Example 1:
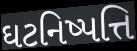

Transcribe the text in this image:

ઘટનિષ્પત્તિ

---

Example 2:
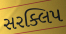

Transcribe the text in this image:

સરક્લિપ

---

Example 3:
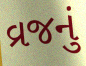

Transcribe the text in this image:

વ્રજનું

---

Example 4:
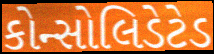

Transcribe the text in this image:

કોન્સોલિડેટેડ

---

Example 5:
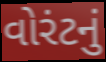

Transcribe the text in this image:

વોરંટનું